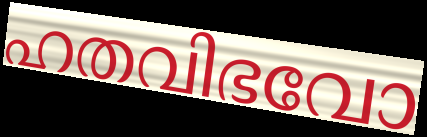
ഹതവിഭവോ